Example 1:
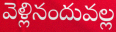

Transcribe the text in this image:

వెళ్లినందువల్ల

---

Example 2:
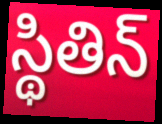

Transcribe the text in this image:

స్థితిన్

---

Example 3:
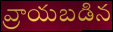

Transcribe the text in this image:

వ్రాయబడిన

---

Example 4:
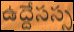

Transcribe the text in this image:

ఉద్దేసస్స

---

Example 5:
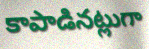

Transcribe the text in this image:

కాపాడినట్లుగా